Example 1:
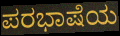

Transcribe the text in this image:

ಪರಭಾಷೆಯ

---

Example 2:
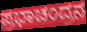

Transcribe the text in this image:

ಪ್ರಭಾಚಂದ್ರನ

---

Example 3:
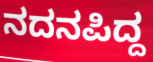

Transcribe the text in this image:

ನದನಪಿದ್ದ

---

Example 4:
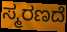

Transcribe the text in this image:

ಸ್ಮರಣದೆ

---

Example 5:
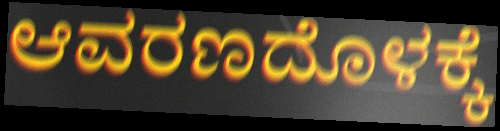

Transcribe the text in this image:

ಆವರಣದೊಳಕ್ಕೆ